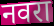
नवरा